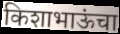
किशाभाऊंचा